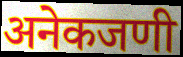
अनेकजणी